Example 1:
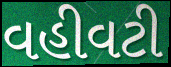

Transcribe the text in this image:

વહીવટી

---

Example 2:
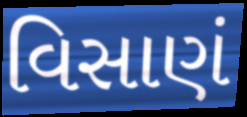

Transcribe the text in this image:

વિસાણં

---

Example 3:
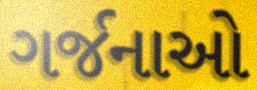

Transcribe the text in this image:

ગર્જનાઓ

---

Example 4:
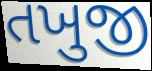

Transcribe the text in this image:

તખુજી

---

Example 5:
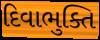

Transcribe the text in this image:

દિવાભુક્તિ